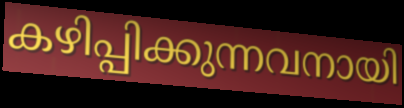
കഴിപ്പിക്കുന്നവനായി